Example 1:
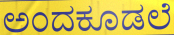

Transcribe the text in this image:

ಅಂದಕೂಡಲೆ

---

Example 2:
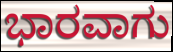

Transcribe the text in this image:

ಭಾರವಾಗು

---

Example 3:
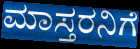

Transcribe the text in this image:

ಮಾಸ್ತರನಿಗೆ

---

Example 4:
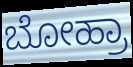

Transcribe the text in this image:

ಬೋಹ್ರಾ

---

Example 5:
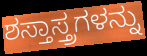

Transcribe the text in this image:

ಶಸ್ತಾಸ್ತ್ರಗಳನ್ನು